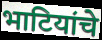
भाटियांचे